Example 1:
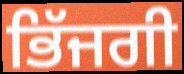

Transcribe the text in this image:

ਭਿੱਜਗੀ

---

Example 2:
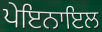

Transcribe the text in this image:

ਪੇਇਨਾਇਲ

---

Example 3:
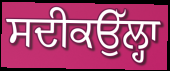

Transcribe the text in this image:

ਸਦੀਕਉੱਲ੍ਹਾ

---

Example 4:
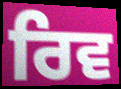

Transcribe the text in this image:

ਰਿਵ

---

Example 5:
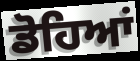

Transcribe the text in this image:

ਡੋਹਿਆਂ